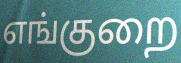
எங்குறை